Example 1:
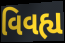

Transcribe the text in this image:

વિવહ્ય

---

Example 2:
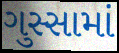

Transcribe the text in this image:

ગુસ્સામાં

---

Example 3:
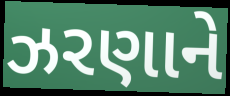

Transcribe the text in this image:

ઝરણાને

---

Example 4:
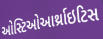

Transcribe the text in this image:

ઓસ્ટિઓઆર્થ્રાઇટિસ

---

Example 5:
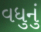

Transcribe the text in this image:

વધુનું